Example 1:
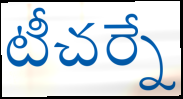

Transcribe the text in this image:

టీచర్నే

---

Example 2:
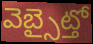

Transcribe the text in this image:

వెబ్సైట్తో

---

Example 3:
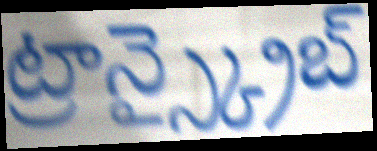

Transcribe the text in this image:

ట్రాన్స్క్రైబ్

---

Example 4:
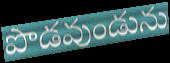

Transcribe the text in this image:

పొడవుండును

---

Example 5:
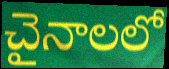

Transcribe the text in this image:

చైనాలలో